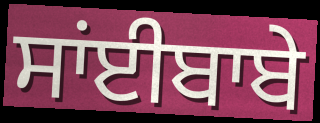
ਸਾਂਈਬਾਬੇ